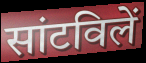
सांटविलें